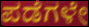
ಪಡೆಗಳೇ